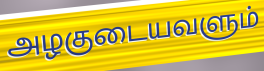
அழகுடையவளும்